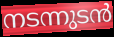
നടന്നുടൻ